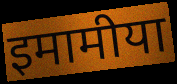
इमामीया